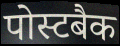
पोस्टबैक